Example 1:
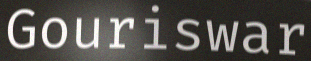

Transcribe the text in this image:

Gouriswar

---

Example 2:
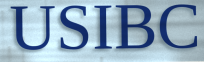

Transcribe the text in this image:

USIBC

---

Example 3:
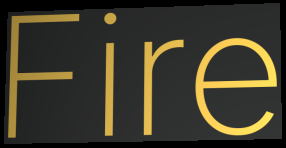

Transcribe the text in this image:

Fire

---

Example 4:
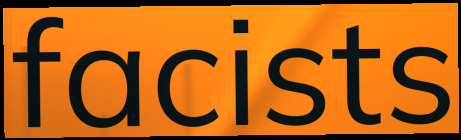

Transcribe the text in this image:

facists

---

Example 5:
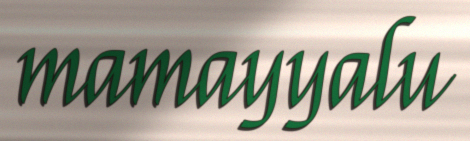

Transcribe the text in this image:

mamayyalu